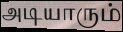
அடியாரும்